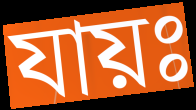
যায়ঃ